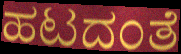
ಹಟದಂತೆ